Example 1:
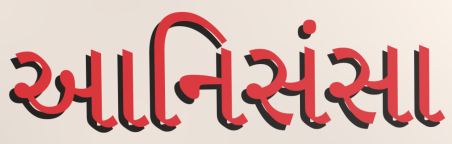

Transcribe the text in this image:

આનિસંસા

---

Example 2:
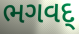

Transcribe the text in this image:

ભગવદ્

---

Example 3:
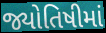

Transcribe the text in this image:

જ્યોતિષીમાં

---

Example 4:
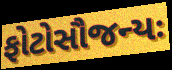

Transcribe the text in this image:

ફોટોસૌજન્યઃ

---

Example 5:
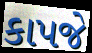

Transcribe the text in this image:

કાપજે